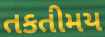
તકતીમય